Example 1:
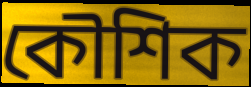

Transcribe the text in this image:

কৌশিক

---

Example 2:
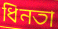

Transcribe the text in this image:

ধিনতা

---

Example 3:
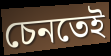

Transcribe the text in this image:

চেনতেই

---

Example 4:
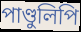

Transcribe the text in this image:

পাণ্ডুলিপি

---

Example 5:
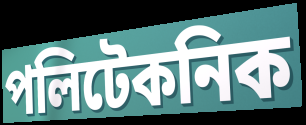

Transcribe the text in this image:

পলিটেকনিক